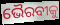
ଭୈରବୀକୁ